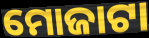
ମୋଜାଟା